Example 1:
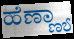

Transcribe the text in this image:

ಹೆಣ್ಣ್ಯಾ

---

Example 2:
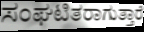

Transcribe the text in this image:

ಸಂಘಟಿತರಾಗುತ್ತಾರೆ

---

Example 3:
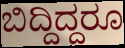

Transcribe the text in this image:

ಬಿದ್ದಿದ್ದರೂ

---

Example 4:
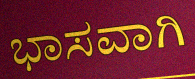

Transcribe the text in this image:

ಭಾಸವಾಗಿ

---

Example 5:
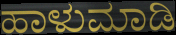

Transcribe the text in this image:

ಹಾಳುಮಾಡಿ